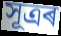
সূত্ৰৰ